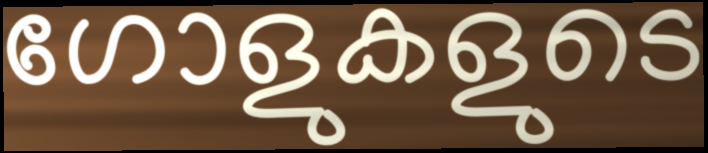
ഗോളുകളുടെ